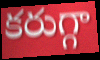
కరుగ్గా